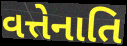
વત્તેનાતિ